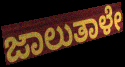
ಜಾಲುತಾಳೇ